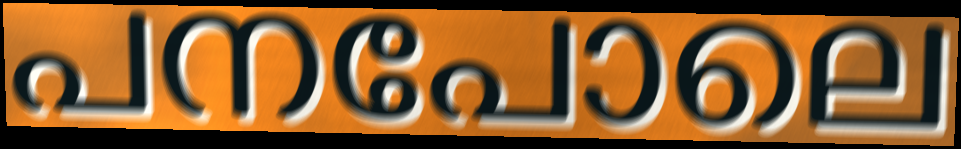
പനപോലെ